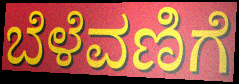
ಬೆಳೆವಣಿಗೆ